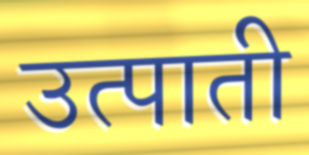
उत्पाती